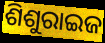
ଶିଶୁରାଇଜ